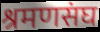
श्रमणसंघ